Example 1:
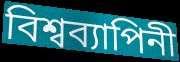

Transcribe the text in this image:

বিশ্বব্যাপিনী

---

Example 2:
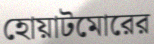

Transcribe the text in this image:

হোয়াটমোরের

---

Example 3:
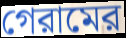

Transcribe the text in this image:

গেরামের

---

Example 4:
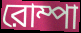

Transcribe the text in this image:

রোম্পা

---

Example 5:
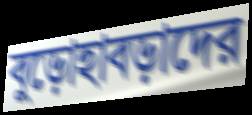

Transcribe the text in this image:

বুড়োহাবড়াদের